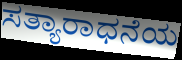
ಸತ್ಯಾರಾಧನೆಯ